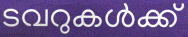
ടവറുകൾക്ക്